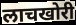
लाचखोरी